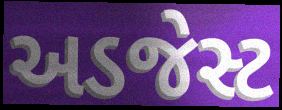
અડજેસ્ટ